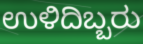
ಉಳಿದಿಬ್ಬರು